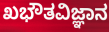
ಖಭೌತವಿಜ್ಞಾನ